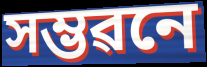
সম্ভৱনে